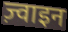
ज़्वाइन